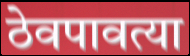
ठेवपावत्या